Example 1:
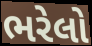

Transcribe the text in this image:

ભરેલો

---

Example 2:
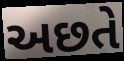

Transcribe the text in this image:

અછતે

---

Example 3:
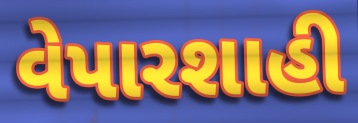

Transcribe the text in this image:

વેપારશાહી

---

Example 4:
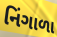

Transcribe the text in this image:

નિંગાળા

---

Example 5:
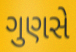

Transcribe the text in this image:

ગુણસે